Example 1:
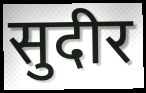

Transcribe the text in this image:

सुदीर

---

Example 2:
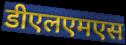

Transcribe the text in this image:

डीएलएमएस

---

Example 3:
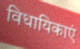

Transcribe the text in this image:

विधायिकाएं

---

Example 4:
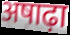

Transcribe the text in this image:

अषाढ़ा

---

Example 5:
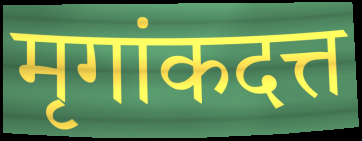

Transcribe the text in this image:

मृगांकदत्त